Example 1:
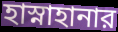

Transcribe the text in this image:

হাস্নাহানার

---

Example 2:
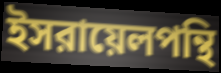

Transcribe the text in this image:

ইসরায়েলপন্থি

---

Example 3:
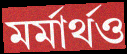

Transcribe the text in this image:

মর্মার্থও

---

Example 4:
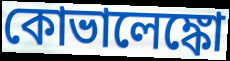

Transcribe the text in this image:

কোভালেঙ্কো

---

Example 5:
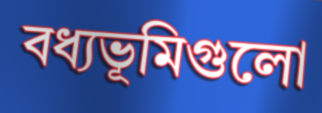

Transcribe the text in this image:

বধ্যভূমিগুলো